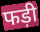
फड़ी